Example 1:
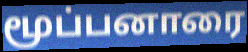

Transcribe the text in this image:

மூப்பனாரை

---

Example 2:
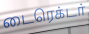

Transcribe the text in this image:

டைரெக்டர்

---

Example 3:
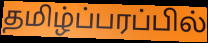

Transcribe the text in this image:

தமிழ்ப்பரப்பில்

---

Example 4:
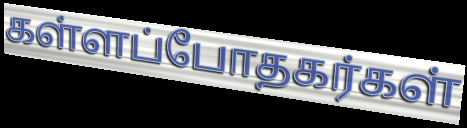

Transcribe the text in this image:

கள்ளப்போதகர்கள்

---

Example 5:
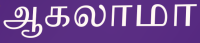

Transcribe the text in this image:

ஆகலாமா